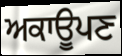
ਅਕਾਊਪਣ